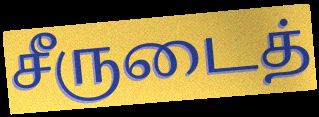
சீருடைத்